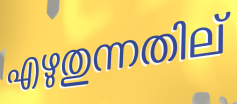
എഴുതുന്നതില്